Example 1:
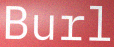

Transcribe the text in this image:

Burl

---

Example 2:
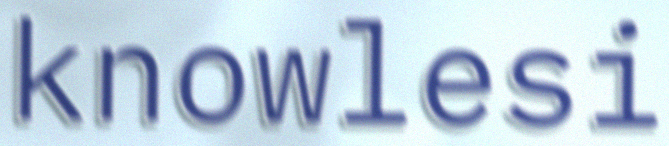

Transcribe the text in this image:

knowlesi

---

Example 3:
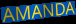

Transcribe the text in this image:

AMANDA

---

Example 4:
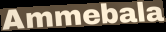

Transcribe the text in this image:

Ammebala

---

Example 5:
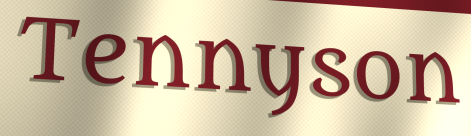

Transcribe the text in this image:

Tennyson